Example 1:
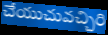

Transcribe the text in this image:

చేయుచువచ్చిరి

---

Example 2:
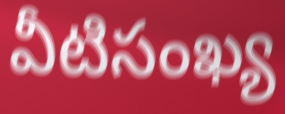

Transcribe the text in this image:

వీటిసంఖ్య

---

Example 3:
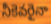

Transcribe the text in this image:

నీకెవరైనా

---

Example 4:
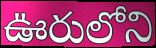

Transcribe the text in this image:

ఊరులోని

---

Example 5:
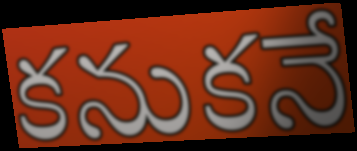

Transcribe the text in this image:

కనుకనే